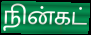
நின்கட்